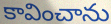
కావించాను